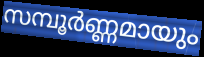
സമ്പൂർണ്ണമായും